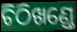
ଚିଠିଖଣ୍ଡେ